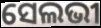
ସେଲଭୀ